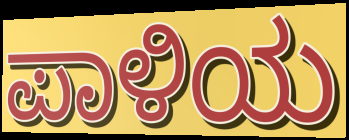
ಪಾಳಿಯ